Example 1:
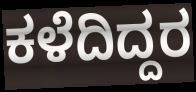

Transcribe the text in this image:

ಕಳೆದಿದ್ದರ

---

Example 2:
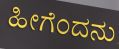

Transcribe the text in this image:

ಹೀಗೆಂದನು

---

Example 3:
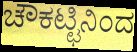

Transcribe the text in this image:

ಚೌಕಟ್ಟಿನಿಂದ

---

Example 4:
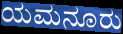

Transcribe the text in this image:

ಯಮನೂರು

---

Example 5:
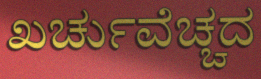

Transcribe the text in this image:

ಖರ್ಚುವೆಚ್ಚದ